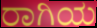
ರಾಗಿಯ